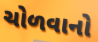
ચોળવાનો